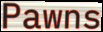
Pawns